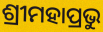
ଶ୍ରୀମହାପ୍ରଭୁ